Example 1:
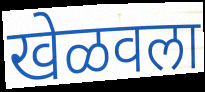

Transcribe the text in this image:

खेळवला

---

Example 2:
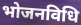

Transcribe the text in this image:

भोजनविधि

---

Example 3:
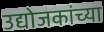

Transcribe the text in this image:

उद्योजकांच्या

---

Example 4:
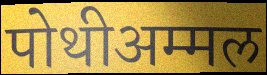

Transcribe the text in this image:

पोथीअम्मल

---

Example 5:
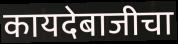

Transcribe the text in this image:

कायदेबाजीचा